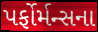
પર્ફોર્મન્સના